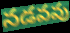
నడవవు